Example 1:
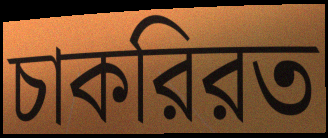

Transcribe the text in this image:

চাকরিরত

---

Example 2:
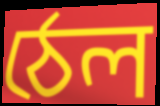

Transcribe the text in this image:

ঠেল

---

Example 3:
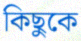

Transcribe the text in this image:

কিছুকে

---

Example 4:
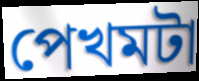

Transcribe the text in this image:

পেখমটা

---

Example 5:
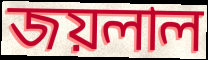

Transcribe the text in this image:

জয়লাল